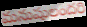
మనుషులందరి